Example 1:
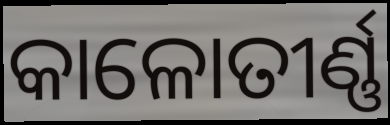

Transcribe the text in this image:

କାଳୋତୀର୍ଣ୍ଣ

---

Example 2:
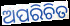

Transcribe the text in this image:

ଅପରିଚିତ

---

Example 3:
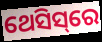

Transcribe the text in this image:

ଥେସିସ୍‌ରେ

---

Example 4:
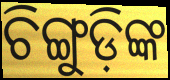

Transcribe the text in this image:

ଚିଙ୍ଗୁଡ଼ିଙ୍କ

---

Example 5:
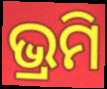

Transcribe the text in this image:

ଭ୍ରମି